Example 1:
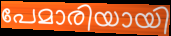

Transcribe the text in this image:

പേമാരിയായി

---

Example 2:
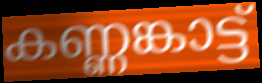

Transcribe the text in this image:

കണ്ണങ്കാട്ട്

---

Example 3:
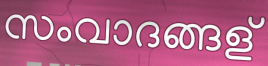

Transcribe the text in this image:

സംവാദങ്ങള്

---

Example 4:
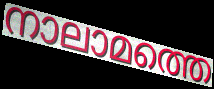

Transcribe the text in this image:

നാലാമത്തെ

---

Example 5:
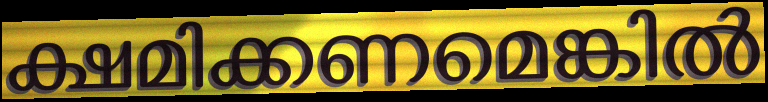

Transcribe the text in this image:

ക്ഷമിക്കണമെങ്കിൽ